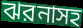
ঝরনাসহ